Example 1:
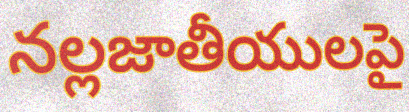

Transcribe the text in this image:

నల్లజాతీయులపై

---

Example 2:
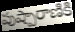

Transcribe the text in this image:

పుష్పారాణికి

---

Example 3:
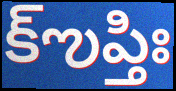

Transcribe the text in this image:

క్ఌప్తిః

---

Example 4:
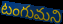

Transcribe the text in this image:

టంగుమని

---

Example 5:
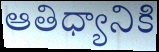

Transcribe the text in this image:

ఆతిధ్యానికి